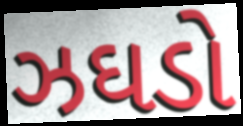
ઝઘડો